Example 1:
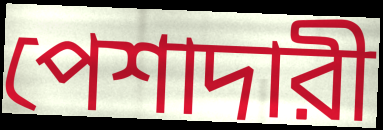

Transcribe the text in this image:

পেশাদারী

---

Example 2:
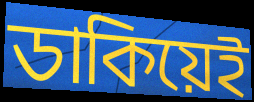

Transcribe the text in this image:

ডাকিয়েই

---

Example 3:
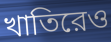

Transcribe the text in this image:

খাতিরেও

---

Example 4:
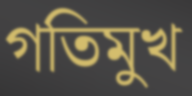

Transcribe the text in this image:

গতিমুখ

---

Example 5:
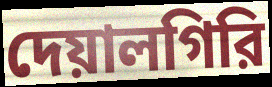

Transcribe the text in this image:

দেয়ালগিরি